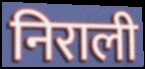
निराली